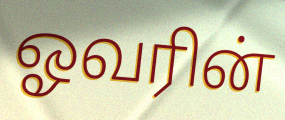
ஓவரின்